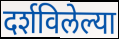
दर्शविलेल्या